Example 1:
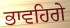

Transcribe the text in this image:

ਭਾਵਹਿਗੇ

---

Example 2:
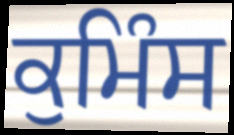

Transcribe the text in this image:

ਕੁਮਿੰਸ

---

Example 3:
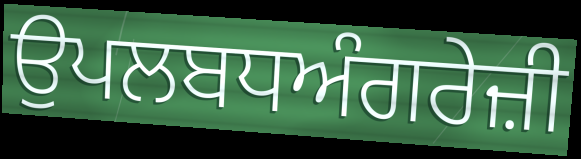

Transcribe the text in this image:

ਉਪਲਬਧਅੰਗਰੇਜ਼ੀ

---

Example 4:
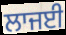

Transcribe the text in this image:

ਲਾਜਈ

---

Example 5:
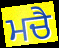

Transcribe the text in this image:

ਮਚੈ